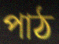
পাঠ